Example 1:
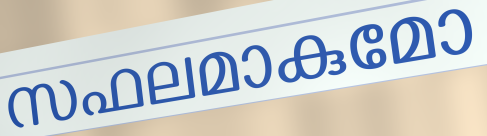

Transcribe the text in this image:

സഫലമാകുമോ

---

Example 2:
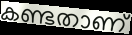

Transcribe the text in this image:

കണ്ടതാണ്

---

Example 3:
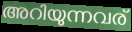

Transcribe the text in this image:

അറിയുന്നവര്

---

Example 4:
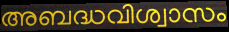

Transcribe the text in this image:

അബദ്ധവിശ്വാസം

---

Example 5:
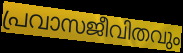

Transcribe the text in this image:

പ്രവാസജീവിതവും